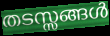
തടസ്സങ്ങൾ